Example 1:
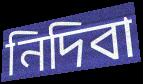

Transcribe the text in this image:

নিদিবা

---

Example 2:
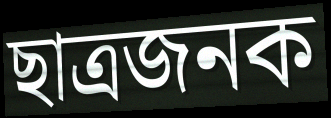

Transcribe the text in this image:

ছাত্ৰজনক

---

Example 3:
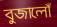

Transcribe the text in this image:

বুজালোঁ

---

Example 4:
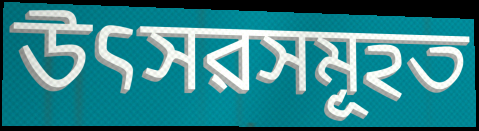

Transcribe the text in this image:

উৎসৱসমূহত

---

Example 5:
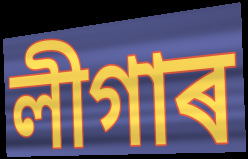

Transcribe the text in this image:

লীগাৰ